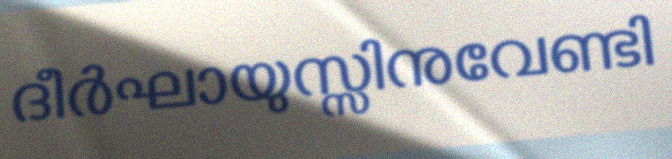
ദീർഘായുസ്സിനുവേണ്ടി